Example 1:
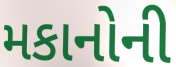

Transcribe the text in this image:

મકાનોની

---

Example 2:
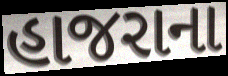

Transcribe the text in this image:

હાજરાના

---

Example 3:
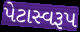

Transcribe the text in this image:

પેટાસ્વરૂપ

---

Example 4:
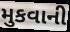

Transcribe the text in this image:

મુકવાની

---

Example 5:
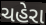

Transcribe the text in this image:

ચહેરા